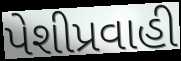
પેશીપ્રવાહી